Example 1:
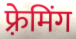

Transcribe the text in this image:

फ़्रेमिंग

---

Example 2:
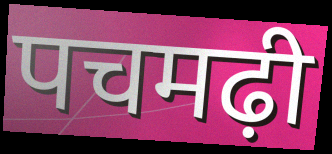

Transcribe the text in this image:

पचमढ़ी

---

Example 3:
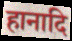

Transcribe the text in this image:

हानादि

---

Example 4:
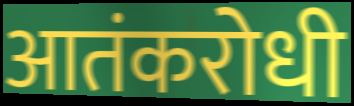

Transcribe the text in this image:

आतंकरोधी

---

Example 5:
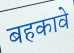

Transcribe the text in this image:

बहकावे